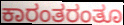
ಕಾರಂತರಂತೂ